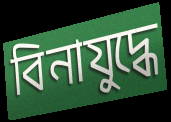
বিনাযুদ্ধে